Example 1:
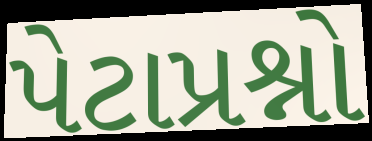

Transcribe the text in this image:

પેટાપ્રશ્નો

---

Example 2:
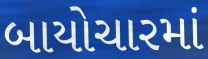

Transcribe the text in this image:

બાયોચારમાં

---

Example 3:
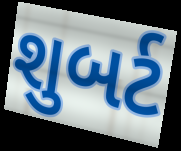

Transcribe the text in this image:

શુબર્ટ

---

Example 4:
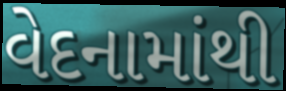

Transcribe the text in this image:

વેદનામાંથી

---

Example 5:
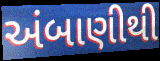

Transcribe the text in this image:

અંબાણીથી